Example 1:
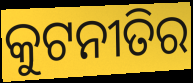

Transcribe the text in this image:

କୁଟନୀତିର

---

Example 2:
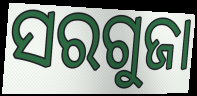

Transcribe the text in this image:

ସରଗୁଜା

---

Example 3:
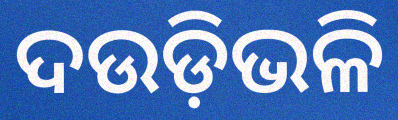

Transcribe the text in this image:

ଦଉଡ଼ିଭଳି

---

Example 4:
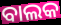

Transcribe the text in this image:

ବାଲକ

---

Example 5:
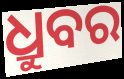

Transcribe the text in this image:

ଧ୍ରୁବର